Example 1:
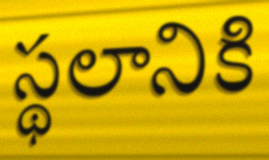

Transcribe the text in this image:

స్థలానికి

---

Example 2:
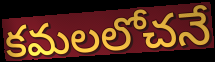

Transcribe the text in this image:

కమలలోచనే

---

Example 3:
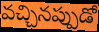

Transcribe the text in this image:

వచ్చినప్పుడో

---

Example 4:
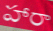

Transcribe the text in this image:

హారా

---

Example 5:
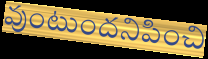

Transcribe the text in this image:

వుంటుందనిపించి